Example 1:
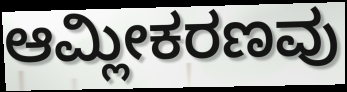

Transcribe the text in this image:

ಆಮ್ಲೀಕರಣವು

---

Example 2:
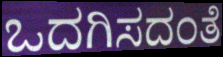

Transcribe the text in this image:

ಒದಗಿಸದಂತೆ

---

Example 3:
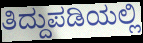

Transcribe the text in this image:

ತಿದ್ದುಪಡಿಯಲ್ಲಿ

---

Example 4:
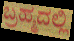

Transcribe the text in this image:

ಬ್ರಹ್ಮದಲ್ಲಿ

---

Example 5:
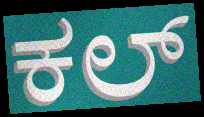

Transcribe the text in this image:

ಕಲ್